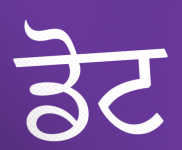
ਡੋਟ